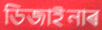
ডিজাইনাৰ